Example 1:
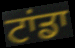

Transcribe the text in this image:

ਟਾਂਡਾ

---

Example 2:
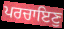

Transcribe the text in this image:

ਪਰਚਾਇਣੁ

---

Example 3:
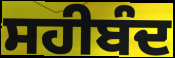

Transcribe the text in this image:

ਸਹੀਬੰਦ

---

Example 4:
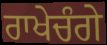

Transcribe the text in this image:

ਰਾਖੇਚੰਗੇ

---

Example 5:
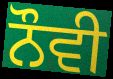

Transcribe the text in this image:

ਨੌਵੀ